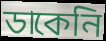
ডাকেনি